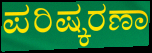
ಪರಿಷ್ಕರಣಾ